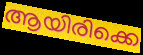
ആയിരിക്കെ